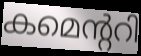
കമെന്ററി